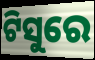
ଟିସୁରେ